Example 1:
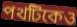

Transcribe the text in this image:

পথটিকেও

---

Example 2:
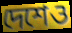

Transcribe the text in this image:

দেশেও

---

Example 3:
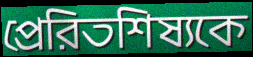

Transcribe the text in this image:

প্রেরিতশিষ্যকে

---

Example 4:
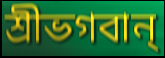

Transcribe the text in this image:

শ্রীভগবান্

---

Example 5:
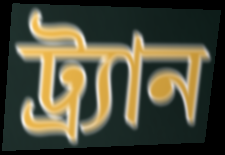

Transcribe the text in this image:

ট্র্যান